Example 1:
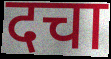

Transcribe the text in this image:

दचा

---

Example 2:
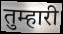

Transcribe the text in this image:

तुम्‍हारी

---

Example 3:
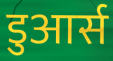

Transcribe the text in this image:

डुआर्स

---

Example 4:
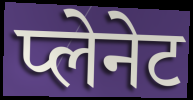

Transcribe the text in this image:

प्लेनेट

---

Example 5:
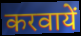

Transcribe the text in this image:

करवायें